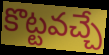
కొట్టవచ్చే